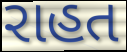
રાહત